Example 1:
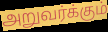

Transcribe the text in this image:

அறுவர்க்கும்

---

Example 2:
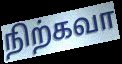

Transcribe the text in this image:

நிற்கவா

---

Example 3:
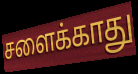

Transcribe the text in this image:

சளைக்காது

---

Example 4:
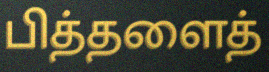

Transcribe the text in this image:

பித்தளைத்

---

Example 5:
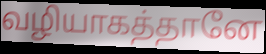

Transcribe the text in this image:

வழியாகத்தானே